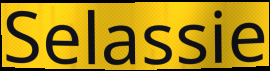
Selassie